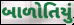
બાળોતિયું